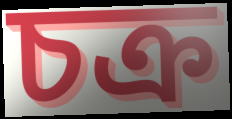
চক্র